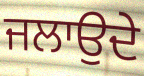
ਜਲਾਉਦੇ